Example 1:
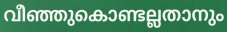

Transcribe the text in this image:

വീഞ്ഞുകൊണ്ടല്ലതാനും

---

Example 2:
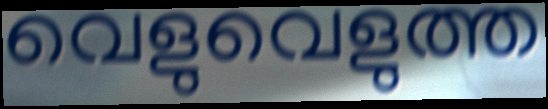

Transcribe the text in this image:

വെളുവെളുത്ത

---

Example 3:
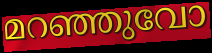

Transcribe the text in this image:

മറഞ്ഞുവോ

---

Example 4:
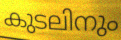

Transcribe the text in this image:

കുടലിനും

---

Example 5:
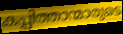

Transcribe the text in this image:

കപ്പിത്താന്മാരുടെ